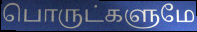
பொருட்களுமே